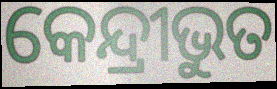
କେନ୍ଦ୍ରୀଭୁତ